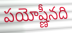
పయోష్ణీనది